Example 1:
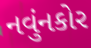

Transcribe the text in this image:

નવુંનકોર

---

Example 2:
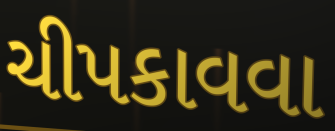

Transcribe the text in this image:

ચીપકાવવા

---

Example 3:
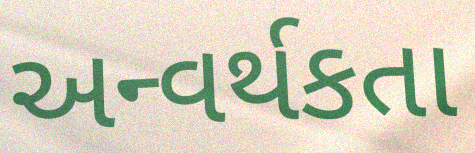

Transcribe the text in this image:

અન્વર્થકતા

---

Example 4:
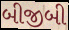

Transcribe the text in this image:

બીજીબી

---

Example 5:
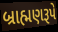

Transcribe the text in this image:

બ્રાહ્મણરૂપે